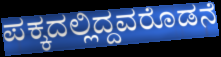
ಪಕ್ಕದಲ್ಲಿದ್ದವರೊಡನೆ